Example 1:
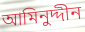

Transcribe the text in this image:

আমিনুদ্দীন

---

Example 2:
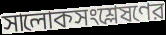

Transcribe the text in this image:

সালোকসংশ্লেষণের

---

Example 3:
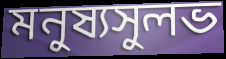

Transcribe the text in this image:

মনুষ্যসুলভ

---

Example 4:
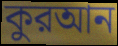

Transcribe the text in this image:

কুরআন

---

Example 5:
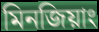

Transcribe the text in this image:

মিনজিয়াং